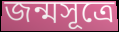
জন্মসূত্রে